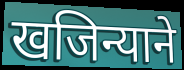
खजिन्याने